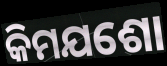
କିମଯଶୋ